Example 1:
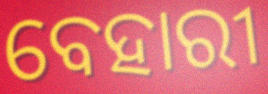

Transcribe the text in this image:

ବେହାରୀ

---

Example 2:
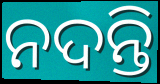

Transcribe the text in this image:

ନଦନ୍ତି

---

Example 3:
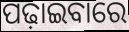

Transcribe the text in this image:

ପଢ଼ାଇବାରେ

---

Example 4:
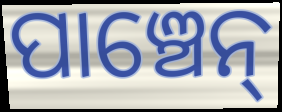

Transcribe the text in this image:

ପାଞ୍ଚେନ୍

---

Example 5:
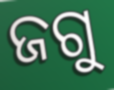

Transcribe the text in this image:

ଜଗୁ